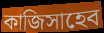
কাজিসাহেব